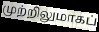
முற்றிலுமாகப்